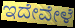
ಇದೇವೇಳೆ